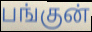
பங்குன்